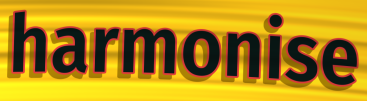
harmonise